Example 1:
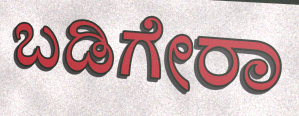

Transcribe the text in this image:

ಬಡಿಗೇರಾ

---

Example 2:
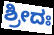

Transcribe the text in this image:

ಶ್ರೀದಃ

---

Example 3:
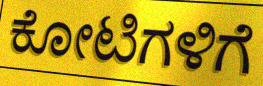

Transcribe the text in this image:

ಕೋಟಿಗಳಿಗೆ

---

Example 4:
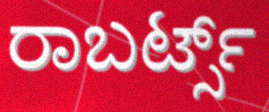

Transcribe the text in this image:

ರಾಬರ್ಟ್ಸ್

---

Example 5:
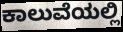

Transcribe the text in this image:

ಕಾಲುವೆಯಲ್ಲಿ